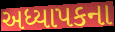
અધ્યાપકના